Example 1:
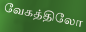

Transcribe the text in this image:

வேகத்திலோ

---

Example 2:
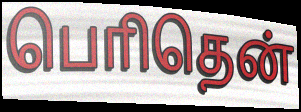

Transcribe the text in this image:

பெரிதென்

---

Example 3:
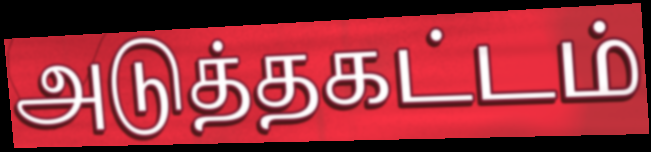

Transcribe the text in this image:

அடுத்தகட்டம்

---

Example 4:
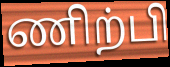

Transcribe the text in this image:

ணிற்பி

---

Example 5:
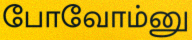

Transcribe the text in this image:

போவோம்னு